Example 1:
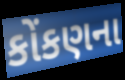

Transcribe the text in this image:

કોંકણના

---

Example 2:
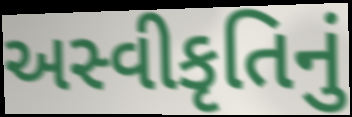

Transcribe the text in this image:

અસ્વીકૃતિનું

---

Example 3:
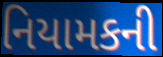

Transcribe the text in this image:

નિયામકની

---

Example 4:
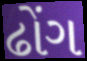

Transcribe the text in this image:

ઢોંગ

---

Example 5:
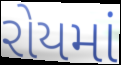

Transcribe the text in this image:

રોયમાં